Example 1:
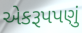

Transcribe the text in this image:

એકરૂપપણું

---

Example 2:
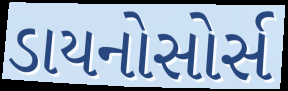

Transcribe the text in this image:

ડાયનોસોર્સ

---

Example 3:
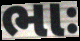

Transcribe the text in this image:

ભાઃ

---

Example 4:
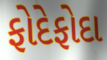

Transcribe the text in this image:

ફોદેફોદા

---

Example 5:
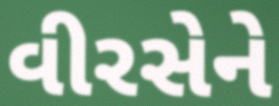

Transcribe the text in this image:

વીરસેને